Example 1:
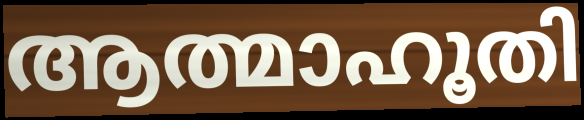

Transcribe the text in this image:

ആത്മാഹൂതി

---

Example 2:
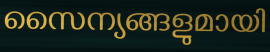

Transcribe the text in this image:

സൈന്യങ്ങളുമായി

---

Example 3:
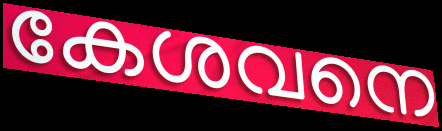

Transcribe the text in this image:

കേശവനെ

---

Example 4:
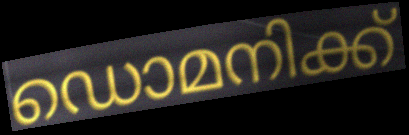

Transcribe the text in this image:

ഡൊമനിക്ക്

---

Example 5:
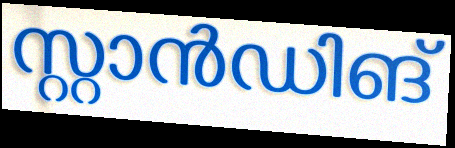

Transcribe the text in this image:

സ്റ്റാൻഡിങ്